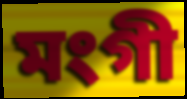
মংগী